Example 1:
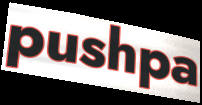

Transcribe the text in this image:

pushpa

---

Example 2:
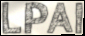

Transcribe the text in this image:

LPAI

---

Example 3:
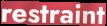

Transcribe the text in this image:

restraint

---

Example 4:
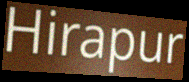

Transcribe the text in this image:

Hirapur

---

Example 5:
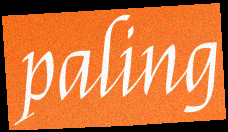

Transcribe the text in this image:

paling